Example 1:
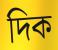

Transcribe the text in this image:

দিক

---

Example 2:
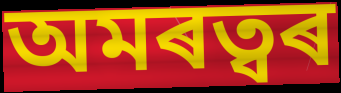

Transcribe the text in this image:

অমৰত্বৰ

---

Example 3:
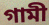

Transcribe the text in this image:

গামী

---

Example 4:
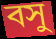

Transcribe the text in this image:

বসু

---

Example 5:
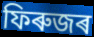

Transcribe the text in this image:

ফিৰুজৰ